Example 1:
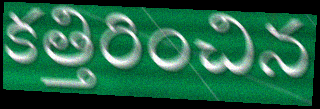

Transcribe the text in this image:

కత్తిరించిన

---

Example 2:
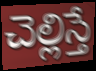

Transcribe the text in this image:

చెల్లిస్తే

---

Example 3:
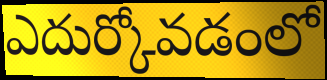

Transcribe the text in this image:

ఎదుర్కోవడంలో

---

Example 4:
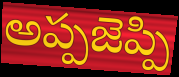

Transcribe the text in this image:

అప్పజెప్పి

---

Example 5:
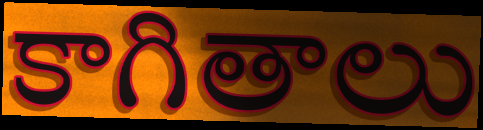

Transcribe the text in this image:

కాగితాలు